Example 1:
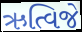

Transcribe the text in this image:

ઋત્વિજે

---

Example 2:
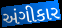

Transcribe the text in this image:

અંગીકાર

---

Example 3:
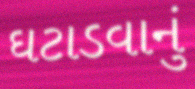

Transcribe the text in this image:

ઘટાડવાનું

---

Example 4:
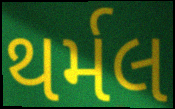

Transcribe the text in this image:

થર્મલ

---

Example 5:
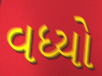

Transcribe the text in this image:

વધ્યો